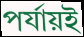
পর্যায়ই